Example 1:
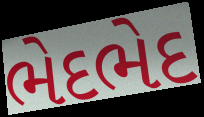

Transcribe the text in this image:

ભેદભેદ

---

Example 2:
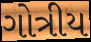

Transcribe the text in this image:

ગોત્રીય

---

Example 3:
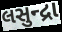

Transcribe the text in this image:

લસુન્દ્રા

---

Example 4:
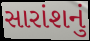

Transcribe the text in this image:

સારાંશનું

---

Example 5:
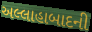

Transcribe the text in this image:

અલ્લાહાબાદની